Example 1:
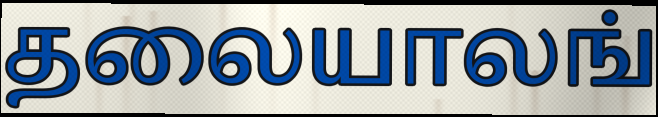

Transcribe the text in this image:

தலையாலங்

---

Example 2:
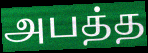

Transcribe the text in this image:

அபத்த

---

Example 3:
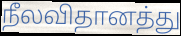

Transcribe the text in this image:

நீலவிதானத்து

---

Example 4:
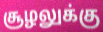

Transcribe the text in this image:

சூழலுக்கு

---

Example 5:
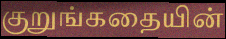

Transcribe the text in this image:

குறுங்கதையின்